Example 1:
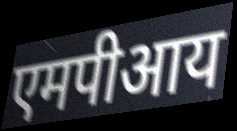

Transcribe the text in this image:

एमपीआय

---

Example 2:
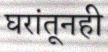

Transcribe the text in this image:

घरांतूनही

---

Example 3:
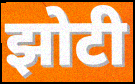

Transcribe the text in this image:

झोटी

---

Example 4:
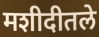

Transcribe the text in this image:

मशीदीतले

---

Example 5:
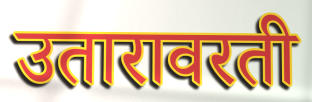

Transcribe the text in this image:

उतारावरती